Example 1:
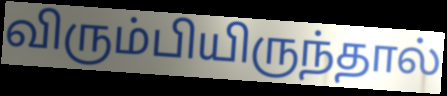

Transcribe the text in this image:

விரும்பியிருந்தால்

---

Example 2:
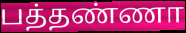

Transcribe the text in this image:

பத்தண்ணா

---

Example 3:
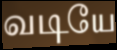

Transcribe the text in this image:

வடியே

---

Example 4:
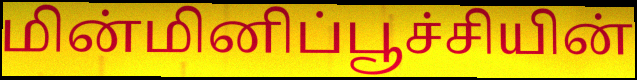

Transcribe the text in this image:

மின்மினிப்பூச்சியின்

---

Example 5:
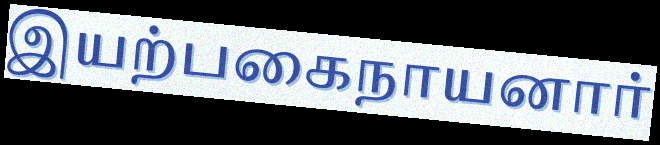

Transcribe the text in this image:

இயற்பகைநாயனார்